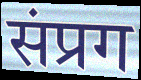
संप्रग